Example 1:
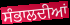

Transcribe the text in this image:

ਸੰਭਾਲਦੀਆਂ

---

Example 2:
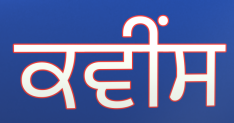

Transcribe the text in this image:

ਕਵੀਂਸ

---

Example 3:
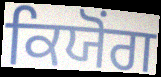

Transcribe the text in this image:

ਕਿਯੋਂਗ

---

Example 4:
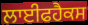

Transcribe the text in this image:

ਲਾਈਫਹੈਕਸ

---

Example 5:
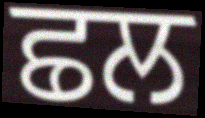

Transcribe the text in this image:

ਛਲ